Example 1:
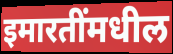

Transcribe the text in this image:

इमारतींमधील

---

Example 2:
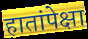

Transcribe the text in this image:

हातांपेक्षा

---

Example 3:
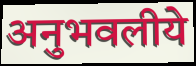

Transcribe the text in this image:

अनुभवलीये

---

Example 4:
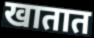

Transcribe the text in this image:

खातात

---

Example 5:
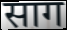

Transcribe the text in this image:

साग